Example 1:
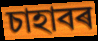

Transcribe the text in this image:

চাহাবৰ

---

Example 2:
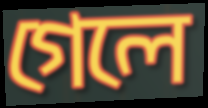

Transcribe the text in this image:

গেলে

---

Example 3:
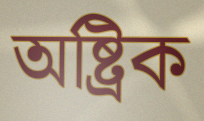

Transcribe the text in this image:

অষ্ট্ৰিক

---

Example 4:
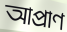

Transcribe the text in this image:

আপ্ৰাণ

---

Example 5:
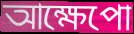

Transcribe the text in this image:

আক্ষেপো